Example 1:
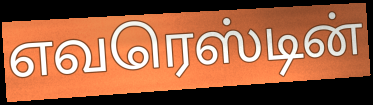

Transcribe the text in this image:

எவரெஸ்டின்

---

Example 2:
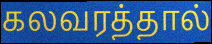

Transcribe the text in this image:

கலவரத்தால்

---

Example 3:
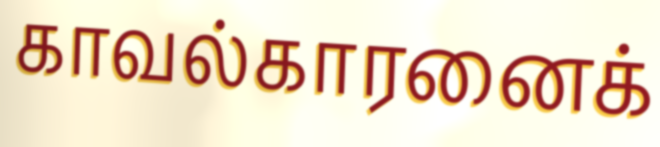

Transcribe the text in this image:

காவல்காரனைக்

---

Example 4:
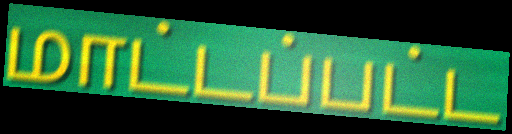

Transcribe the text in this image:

மாட்டப்பட்ட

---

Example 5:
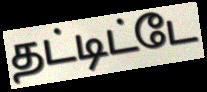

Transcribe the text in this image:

தட்டிட்டே